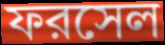
ফরসেল